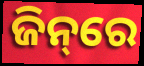
ଜିନ୍‌ରେ